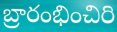
బ్రారంభించిరి